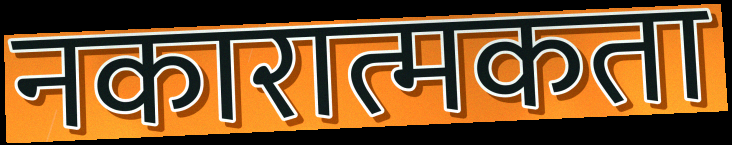
नकारात्मकता